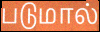
படுமால்